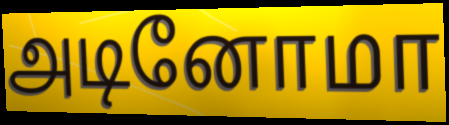
அடினோமா